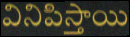
వినిపిస్తాయి